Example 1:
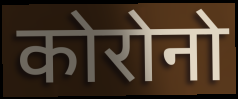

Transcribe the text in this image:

कोरोनो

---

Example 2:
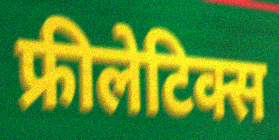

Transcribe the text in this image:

फ्रीलेटिक्स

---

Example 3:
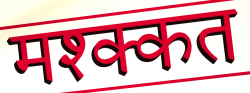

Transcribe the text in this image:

मश्क्कत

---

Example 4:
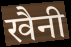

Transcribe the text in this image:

खैनी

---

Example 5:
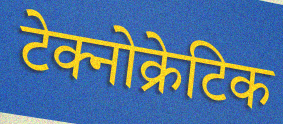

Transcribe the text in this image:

टेक्नोक्रेटिक